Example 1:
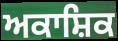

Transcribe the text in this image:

ਅਕਾਸ਼ਿਕ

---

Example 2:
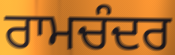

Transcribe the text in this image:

ਰਾਮਚੰਦਰ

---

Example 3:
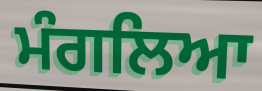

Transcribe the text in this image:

ਮੰਗਲਿਆ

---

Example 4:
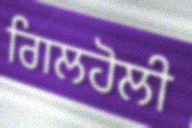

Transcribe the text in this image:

ਗਿਲਹੋਲੀ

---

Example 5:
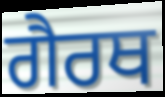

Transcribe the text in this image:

ਗੈਰਥ